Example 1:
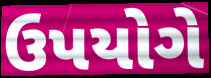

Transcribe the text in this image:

ઉપયોગે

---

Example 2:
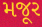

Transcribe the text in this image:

મજૂર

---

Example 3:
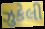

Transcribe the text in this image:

ઝુકેલી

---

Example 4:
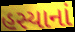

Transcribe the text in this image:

હસ્યાનાં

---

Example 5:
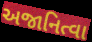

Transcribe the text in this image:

અજાનિત્વા